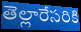
తెల్లారేసరికి